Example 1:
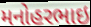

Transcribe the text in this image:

મનોહરભાઇ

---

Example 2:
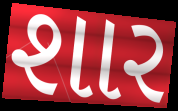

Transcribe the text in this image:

શાર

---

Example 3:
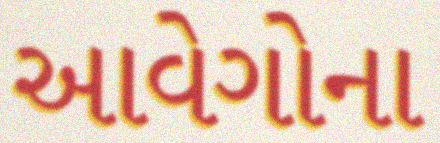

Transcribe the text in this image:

આવેગોના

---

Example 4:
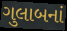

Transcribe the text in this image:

ગુલાબનાં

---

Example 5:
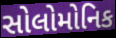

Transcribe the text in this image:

સોલોમોનિક